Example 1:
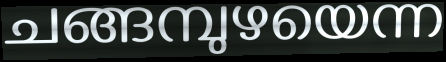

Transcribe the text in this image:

ചങ്ങമ്പുഴയെന്ന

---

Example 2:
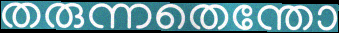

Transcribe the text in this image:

തരുന്നതെന്തോ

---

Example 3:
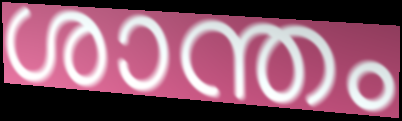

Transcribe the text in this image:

ശാന്തം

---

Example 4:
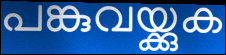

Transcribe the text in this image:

പങ്കുവയ്ക്കുക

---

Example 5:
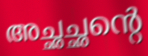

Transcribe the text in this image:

അച്ഛച്ഛന്റെ